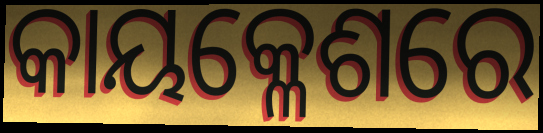
କାୟକ୍ଳେଶରେ